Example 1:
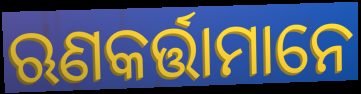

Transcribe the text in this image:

ଋଣକର୍ତ୍ତାମାନେ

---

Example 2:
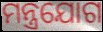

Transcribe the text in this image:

ମନ୍ତ୍ରଯୋଗ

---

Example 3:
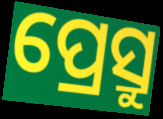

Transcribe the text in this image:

ପ୍ରେସ୍ରୁ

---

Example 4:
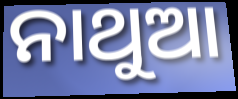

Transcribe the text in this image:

ନାଥୁଆ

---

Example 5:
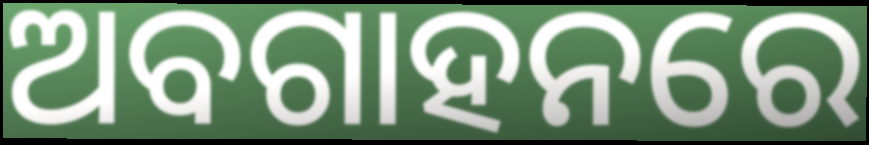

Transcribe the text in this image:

ଅବଗାହନରେ